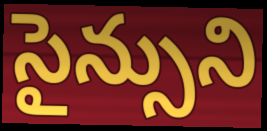
సైన్సుని